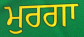
ਮੁਰਗਾ